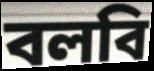
বলবি